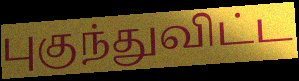
புகுந்துவிட்ட